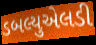
ડબલ્યુએલડી